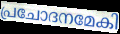
പ്രചോദനമേകി